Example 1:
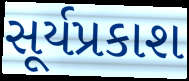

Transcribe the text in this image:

સૂર્યપ્રકાશ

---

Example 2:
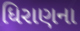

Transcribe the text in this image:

ધિરાણના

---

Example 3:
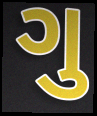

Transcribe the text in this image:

ગુ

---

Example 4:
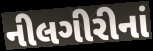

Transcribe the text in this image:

નીલગીરીનાં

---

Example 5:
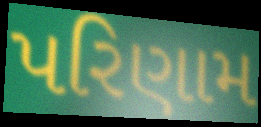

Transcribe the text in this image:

પરિણામ